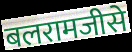
बलरामजीसे